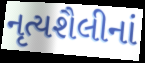
નૃત્યશૈલીનાં